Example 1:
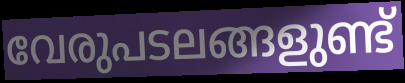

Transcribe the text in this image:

വേരുപടലങ്ങളുണ്ട്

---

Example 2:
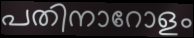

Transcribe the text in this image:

പതിനാറോളം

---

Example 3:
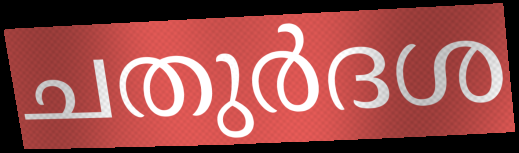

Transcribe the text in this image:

ചതുർദശ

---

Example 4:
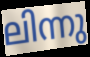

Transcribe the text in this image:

ലിന്നു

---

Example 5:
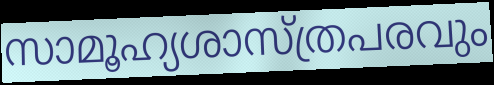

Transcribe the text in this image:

സാമൂഹ്യശാസ്ത്രപരവും